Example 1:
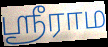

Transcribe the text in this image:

ஸ்ரீராம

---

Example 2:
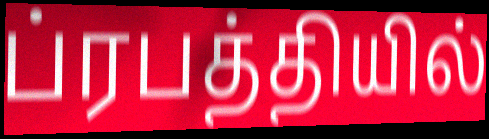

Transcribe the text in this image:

ப்ரபத்தியில்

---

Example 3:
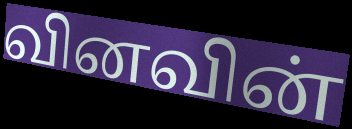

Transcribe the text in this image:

வினவின்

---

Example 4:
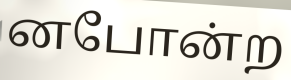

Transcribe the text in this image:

னபோன்ற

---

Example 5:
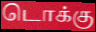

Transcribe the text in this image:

டொக்கு